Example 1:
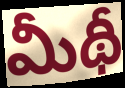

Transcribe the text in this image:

మీథీ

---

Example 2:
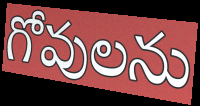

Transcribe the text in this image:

గోవులను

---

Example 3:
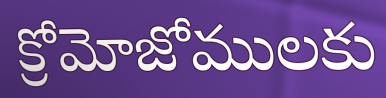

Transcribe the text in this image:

క్రోమోజోములకు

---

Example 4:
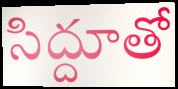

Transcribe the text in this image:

సిద్దూతో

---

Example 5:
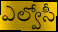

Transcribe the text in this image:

ఎల్వోసీ